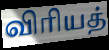
விரியத்